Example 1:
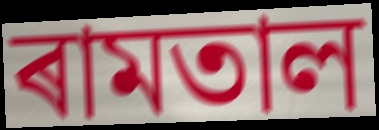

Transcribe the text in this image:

ৰামতাল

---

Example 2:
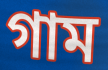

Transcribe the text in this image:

গাম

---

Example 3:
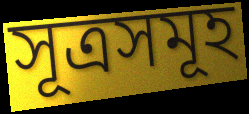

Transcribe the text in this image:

সূত্ৰসমূহ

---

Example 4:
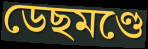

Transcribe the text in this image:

ডেছমণ্ডে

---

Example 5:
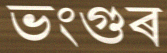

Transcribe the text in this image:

ভংগুৰ